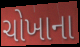
ચોખાના